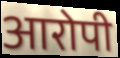
आरोपी